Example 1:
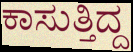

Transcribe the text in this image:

ಕಾಸುತ್ತಿದ್ದ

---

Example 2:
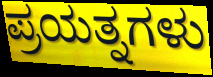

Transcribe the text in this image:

ಪ್ರಯತ್ನಗಳು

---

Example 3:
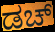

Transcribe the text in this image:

ಡಚ್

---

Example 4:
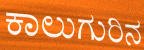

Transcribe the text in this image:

ಕಾಲುಗುರಿನ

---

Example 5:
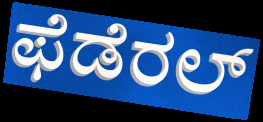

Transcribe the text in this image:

ಫೆಡೆರಲ್